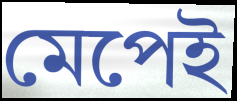
মেপেই